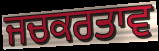
ਜਚਕਰਤਾਵ